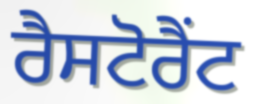
ਰੈਸਟੋਰੈਂਟ